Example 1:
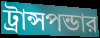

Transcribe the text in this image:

ট্রান্সপন্ডার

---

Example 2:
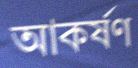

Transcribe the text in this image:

আকর্ষণ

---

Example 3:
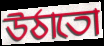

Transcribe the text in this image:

উঠাতো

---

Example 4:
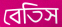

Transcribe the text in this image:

বেতিস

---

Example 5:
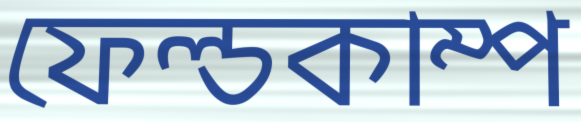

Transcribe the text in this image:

ফেল্ডকাম্প